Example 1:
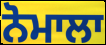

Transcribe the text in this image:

ਨੋਮਾਲਾ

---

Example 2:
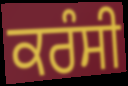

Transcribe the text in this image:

ਕਰੰਸੀ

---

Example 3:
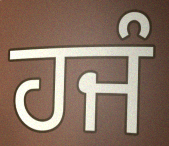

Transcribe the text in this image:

ਹਜੰ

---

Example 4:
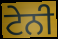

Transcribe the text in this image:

ਟੇਨੀ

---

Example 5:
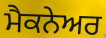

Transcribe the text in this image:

ਮੈਕਨੇਅਰ